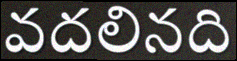
వదలినది